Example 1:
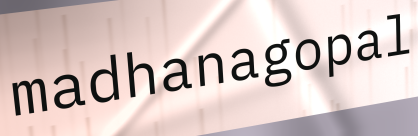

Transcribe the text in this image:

madhanagopal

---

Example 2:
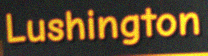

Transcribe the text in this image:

Lushington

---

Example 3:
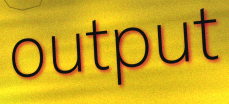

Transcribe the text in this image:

output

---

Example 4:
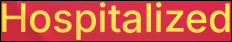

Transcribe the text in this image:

Hospitalized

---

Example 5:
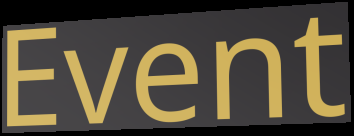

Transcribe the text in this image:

Event